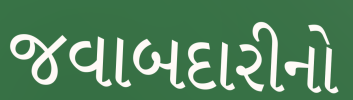
જવાબદારીનો